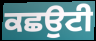
ਕਛਉਟੀ